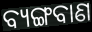
ବ୍ୟଙ୍ଗବାଣ